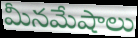
మీనమేషాలు